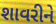
શાવરીને